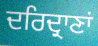
ਦਰਿਦ੍ਰਾਣਾਂ